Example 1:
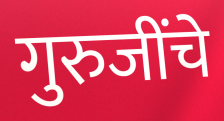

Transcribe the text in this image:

गुरुजींचे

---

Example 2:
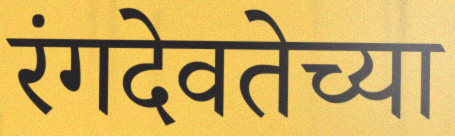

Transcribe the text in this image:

रंगदेवतेच्या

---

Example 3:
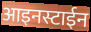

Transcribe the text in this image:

आइनस्टाईन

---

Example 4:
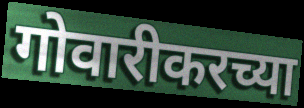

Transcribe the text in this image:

गोवारीकरच्या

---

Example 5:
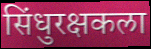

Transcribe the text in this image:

सिंधुरक्षकला